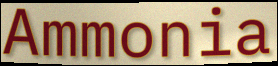
Ammonia